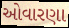
ઓવારણા